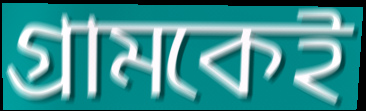
গ্রামকেই